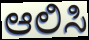
ಆಲಿಸಿ